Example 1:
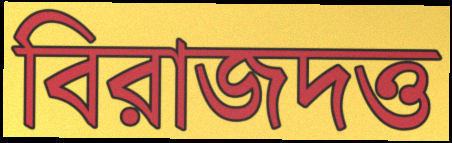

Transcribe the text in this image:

বিরাজদত্ত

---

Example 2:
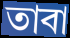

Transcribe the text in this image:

তাবা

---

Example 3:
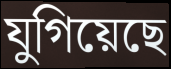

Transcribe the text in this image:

যুগিয়েছে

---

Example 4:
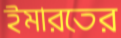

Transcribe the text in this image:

ইমারতের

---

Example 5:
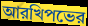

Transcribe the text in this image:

আরখিপভের